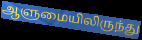
ஆளுமையிலிருந்து